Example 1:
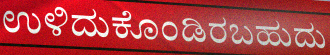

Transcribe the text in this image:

ಉಳಿದುಕೊಂಡಿರಬಹುದು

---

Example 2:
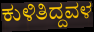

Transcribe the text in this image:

ಕುಳಿತಿದ್ದವಳ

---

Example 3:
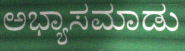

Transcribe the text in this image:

ಅಭ್ಯಾಸಮಾಡು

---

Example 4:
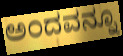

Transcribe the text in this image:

ಅಂದವನ್ನೂ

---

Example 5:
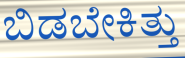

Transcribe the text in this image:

ಬಿಡಬೇಕಿತ್ತು